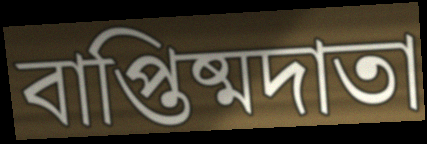
বাপ্তিষ্মদাতা